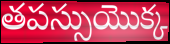
తపస్సుయొక్క